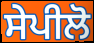
ਸੇਪੀਲੋ